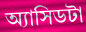
অ্যাসিডটা